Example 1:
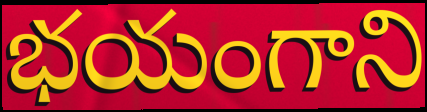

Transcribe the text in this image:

భయంగాని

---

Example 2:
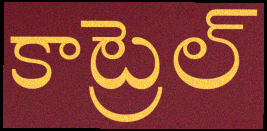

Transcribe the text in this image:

కాట్రెల్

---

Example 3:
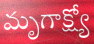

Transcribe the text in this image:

మృగాక్ష్యో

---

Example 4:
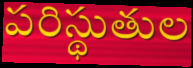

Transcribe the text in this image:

పరిస్థుతుల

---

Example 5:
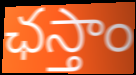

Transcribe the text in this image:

ఛస్తాం